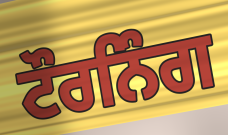
ਟੌਰਨਿੰਗ